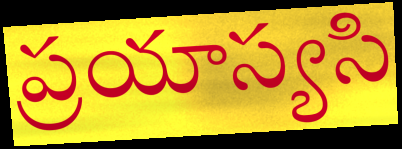
ప్రయాస్యసి